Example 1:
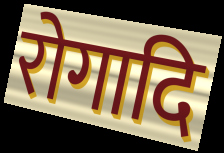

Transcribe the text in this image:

रोगादि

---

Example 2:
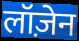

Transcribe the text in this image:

लॉज़ेन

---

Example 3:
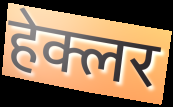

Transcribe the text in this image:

हेक्लर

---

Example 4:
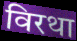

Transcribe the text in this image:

विरथा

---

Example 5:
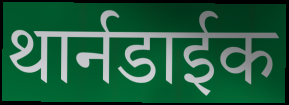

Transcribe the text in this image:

थार्नडाईक